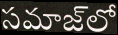
సమాజ్‌లో